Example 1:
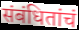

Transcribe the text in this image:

संबंधितांचं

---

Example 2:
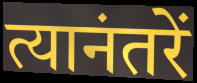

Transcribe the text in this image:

त्यानंतरें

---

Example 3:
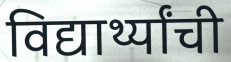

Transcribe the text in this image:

विद्यार्थ्‍यांची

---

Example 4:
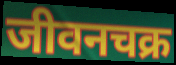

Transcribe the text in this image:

जीवनचक्र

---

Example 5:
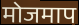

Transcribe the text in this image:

मोजमाप